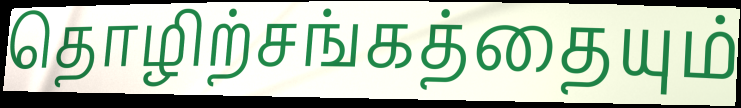
தொழிற்சங்கத்தையும்